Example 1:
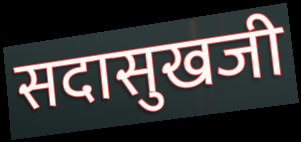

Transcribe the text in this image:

सदासुखजी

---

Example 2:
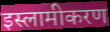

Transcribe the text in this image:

इस्लामीकरण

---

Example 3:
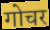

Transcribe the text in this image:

गोचर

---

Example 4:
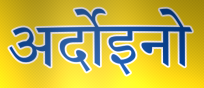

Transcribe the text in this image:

अर्दोइनो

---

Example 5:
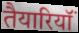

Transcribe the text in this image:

तैयारियॉं